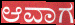
ಆವಾಗ